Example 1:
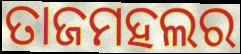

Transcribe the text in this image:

ତାଜମହଲର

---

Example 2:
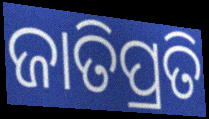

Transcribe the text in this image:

ଜାତିପ୍ରତି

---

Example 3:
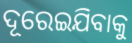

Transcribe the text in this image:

ଦୂରେଇଯିବାକୁ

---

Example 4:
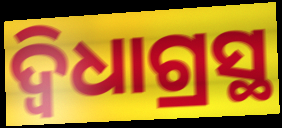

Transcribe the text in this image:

ଦ୍ବିଧାଗ୍ରସ୍ଥ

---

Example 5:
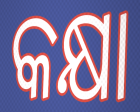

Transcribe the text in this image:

କକ୍ଷା